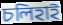
চলিহাই